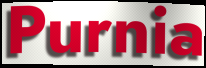
Purnia